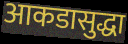
आकडासुद्धा